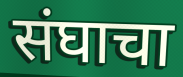
संघाचा